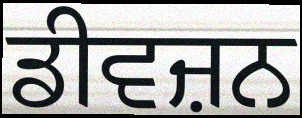
ਡੀਵਜ਼ਨ